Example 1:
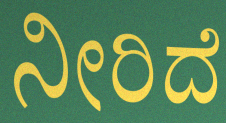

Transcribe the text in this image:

ನೀರಿದೆ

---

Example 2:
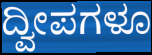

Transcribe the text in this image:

ದ್ವೀಪಗಳೂ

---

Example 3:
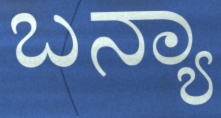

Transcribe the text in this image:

ಬನ್ಯಾ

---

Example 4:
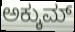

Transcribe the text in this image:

ಅಕ್ಕುಮ್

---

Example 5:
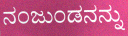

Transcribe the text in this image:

ನಂಜುಂಡನನ್ನು